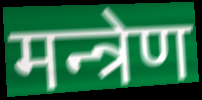
मन्त्रेण